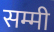
सम्मी